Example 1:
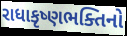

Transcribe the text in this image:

રાધાકૃષ્ણભક્તિનો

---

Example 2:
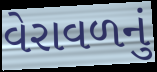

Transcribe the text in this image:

વેરાવળનું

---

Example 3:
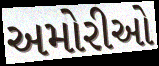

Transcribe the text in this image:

અમોરીઓ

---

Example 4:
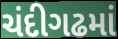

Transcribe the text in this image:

ચંદીગઢમાં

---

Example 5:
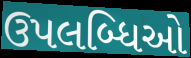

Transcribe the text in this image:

ઉપલબ્ધિઓ